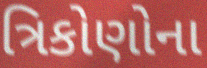
ત્રિકોણોના